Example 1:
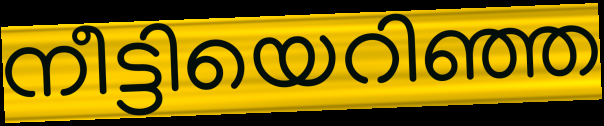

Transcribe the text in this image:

നീട്ടിയെറിഞ്ഞ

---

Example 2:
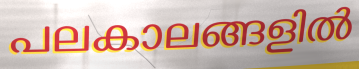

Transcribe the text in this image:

പലകാലങ്ങളിൽ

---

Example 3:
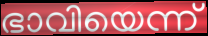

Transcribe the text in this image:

ഭാവിയെന്ന്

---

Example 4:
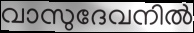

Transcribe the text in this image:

വാസുദേവനിൽ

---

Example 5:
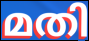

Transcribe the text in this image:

മതി